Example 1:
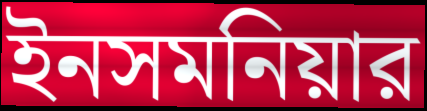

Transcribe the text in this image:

ইনসমনিয়ার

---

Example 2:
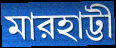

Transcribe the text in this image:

মারহাট্টী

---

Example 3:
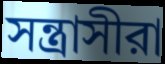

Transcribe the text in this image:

সন্ত্রাসীরা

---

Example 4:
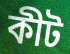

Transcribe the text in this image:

কীট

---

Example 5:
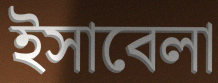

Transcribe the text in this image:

ইসাবেলা